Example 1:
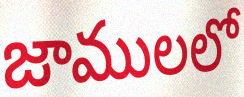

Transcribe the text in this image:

జాములలో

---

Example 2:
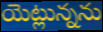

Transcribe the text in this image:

యెట్లున్నను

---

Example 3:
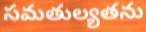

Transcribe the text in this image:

సమతుల్యతను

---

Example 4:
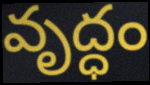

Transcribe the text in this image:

వృద్ధం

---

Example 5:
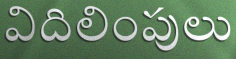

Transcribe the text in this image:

విదిలింపులు